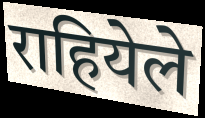
राहियेले